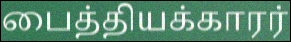
பைத்தியக்காரர்